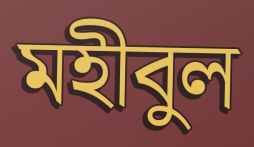
মহীবুল